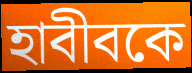
হাবীবকে